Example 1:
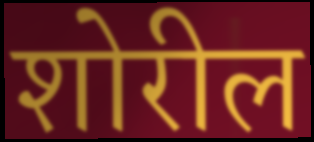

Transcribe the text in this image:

शोरील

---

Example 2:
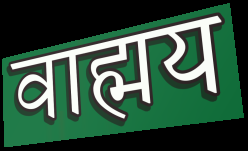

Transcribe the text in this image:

वाह्मय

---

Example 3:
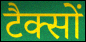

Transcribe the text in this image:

टैक्सों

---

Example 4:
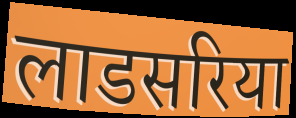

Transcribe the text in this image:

लाडसरिया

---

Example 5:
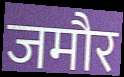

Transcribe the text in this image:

जमौर